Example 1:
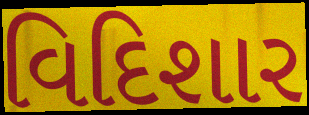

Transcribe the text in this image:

વિદિશાર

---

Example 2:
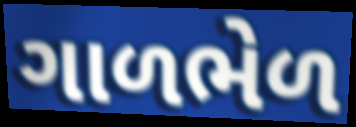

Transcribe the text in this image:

ગાળભેળ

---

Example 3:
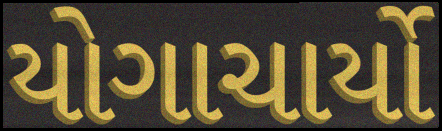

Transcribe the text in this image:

યોગાચાર્યો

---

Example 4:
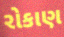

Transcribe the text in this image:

રોકાણ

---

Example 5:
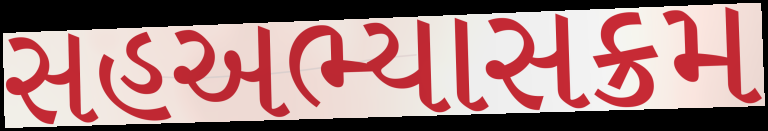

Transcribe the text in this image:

સહઅભ્યાસક્રમ